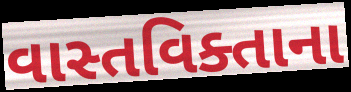
વાસ્તવિક્તાના